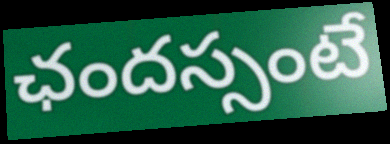
ఛందస్సంటే